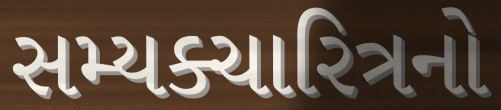
સમ્યક્ચારિત્રનો